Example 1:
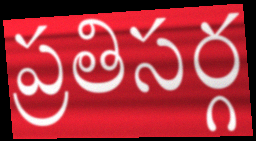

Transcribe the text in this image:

ప్రతిసర్గ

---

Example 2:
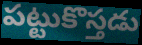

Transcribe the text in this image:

పట్టుకొస్తడు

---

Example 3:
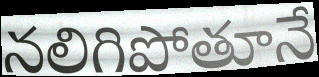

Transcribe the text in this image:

నలిగిపోతూనే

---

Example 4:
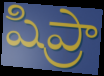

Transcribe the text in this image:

షిప్రా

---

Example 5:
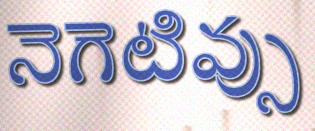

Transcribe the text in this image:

నెగెటివ్సు